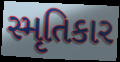
સ્મૃતિકાર